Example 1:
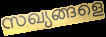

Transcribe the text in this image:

സഖ്യങ്ങളെ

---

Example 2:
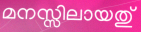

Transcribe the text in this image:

മനസ്സിലായതു്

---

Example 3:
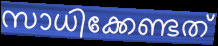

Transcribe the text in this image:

സാധിക്കേണ്ടത്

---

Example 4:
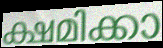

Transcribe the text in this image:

ക്ഷമിക്കാ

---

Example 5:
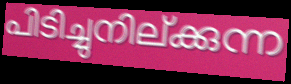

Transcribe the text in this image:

പിടിച്ചുനില്ക്കുന്ന